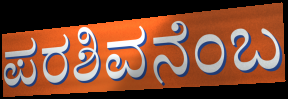
ಪರಶಿವನೆಂಬ